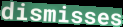
dismisses